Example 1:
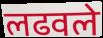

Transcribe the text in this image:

लढवले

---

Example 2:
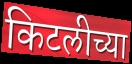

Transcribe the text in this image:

किटलीच्या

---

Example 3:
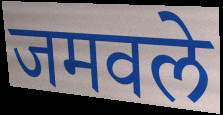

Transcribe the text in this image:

जमवले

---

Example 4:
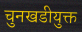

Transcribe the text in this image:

चुनखडीयुक्त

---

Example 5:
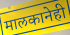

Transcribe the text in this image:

मालकानेही